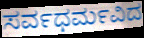
ಸರ್ವಧರ್ಮವಿದ